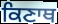
ਕਿਣਾਥ